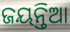
ଜୟନ୍ତିଆ